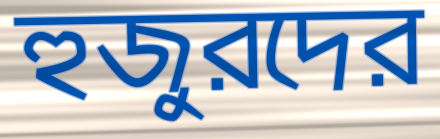
হুজুরদের